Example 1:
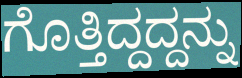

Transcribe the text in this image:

ಗೊತ್ತಿದ್ದದ್ದನ್ನು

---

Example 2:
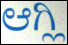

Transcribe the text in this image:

ಆಗ್ಲಿ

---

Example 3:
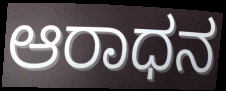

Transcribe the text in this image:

ಆರಾಧನ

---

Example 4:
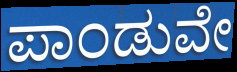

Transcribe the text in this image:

ಪಾಂಡುವೇ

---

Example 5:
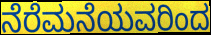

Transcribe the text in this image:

ನೆರೆಮನೆಯವರಿಂದ